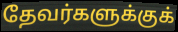
தேவர்களுக்குக்